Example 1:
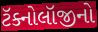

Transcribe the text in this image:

ટૅક્નોલૉજીનો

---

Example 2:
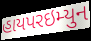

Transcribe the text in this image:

હાયપરઇમ્યુન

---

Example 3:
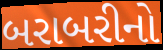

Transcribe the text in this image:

બરાબરીનો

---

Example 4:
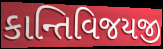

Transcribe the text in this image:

કાન્તિવિજયજી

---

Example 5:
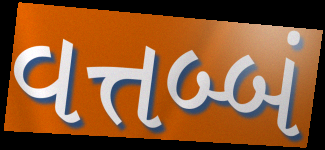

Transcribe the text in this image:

વત્તબ્બં